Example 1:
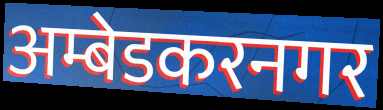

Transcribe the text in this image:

अम्बेडकरनगर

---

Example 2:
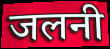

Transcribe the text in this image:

जलनी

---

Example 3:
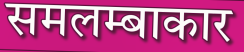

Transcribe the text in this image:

समलम्बाकार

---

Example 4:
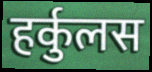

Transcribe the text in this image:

हर्कुलस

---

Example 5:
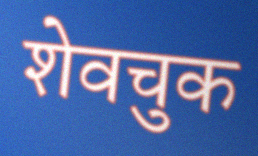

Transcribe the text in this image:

शेवचुक